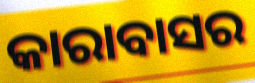
କାରାବାସର